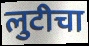
लुटीचा